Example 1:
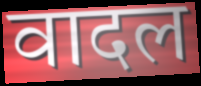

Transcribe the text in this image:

वादल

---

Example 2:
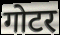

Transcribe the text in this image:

गोटर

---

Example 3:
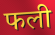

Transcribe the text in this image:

फली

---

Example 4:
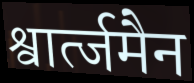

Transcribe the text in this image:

श्वार्त्जमैन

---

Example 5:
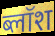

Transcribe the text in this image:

ब्लॉश